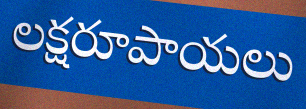
లక్షరూపాయలు